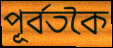
পূৰ্বতকৈ